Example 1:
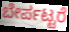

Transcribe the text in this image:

ಬೇರ್ಪಟ್ಟರೆ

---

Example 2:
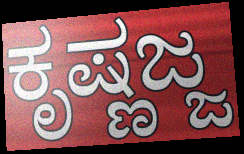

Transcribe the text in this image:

ಕೃಷ್ಣಜ್ಜ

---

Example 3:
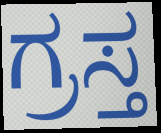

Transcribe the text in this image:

ಗ್ರಸ್ತ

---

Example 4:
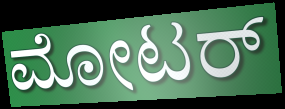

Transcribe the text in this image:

ಮೋಟರ್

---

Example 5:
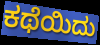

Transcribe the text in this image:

ಕಥೆಯಿದು